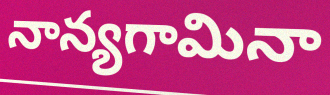
నాన్యగామినా